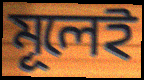
মূলেই